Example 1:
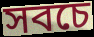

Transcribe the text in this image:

সবচে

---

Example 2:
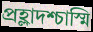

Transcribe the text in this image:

প্রহ্লাদশ্চাস্মি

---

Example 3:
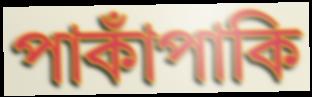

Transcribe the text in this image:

পাকাঁপাকি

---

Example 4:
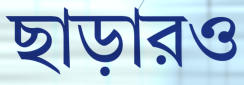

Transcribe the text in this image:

ছাড়ারও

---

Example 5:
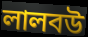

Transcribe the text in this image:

লালবউ